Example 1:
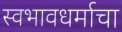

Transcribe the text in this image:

स्वभावधर्माचा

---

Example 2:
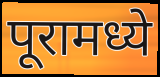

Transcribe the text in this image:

पूरामध्ये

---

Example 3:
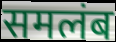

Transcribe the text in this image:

समलंब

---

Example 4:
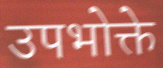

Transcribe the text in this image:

उपभोक्ते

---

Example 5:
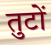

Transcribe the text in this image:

तुटों